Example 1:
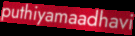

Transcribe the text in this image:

puthiyamaadhavi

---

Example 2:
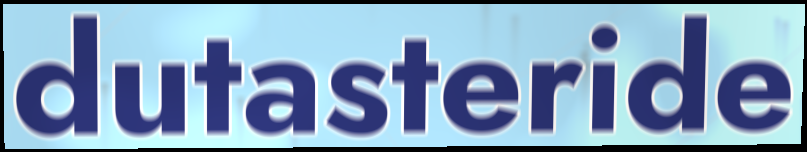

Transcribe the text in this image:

dutasteride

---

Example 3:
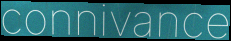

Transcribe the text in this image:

connivance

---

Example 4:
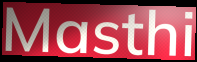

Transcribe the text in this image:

Masthi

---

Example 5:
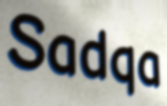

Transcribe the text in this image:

Sadqa